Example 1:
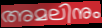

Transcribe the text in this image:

അമലിനും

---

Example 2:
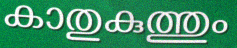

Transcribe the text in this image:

കാതുകുത്തും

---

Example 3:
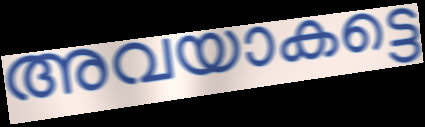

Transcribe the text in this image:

അവയാകട്ടെ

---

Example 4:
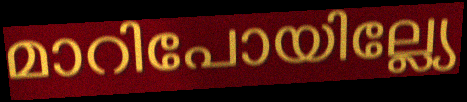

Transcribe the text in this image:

മാറിപോയില്ല്യേ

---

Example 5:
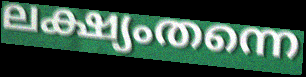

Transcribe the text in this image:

ലക്ഷ്യംതന്നെ